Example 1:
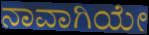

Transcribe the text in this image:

ನಾವಾಗಿಯೇ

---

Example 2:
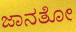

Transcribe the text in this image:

ಜಾನತೋ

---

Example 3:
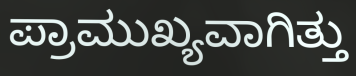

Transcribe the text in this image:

ಪ್ರಾಮುಖ್ಯವಾಗಿತ್ತು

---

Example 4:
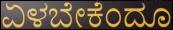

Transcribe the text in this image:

ಏಳಬೇಕೆಂದೂ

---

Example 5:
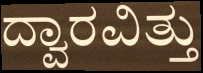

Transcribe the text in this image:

ದ್ವಾರವಿತ್ತು